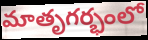
మాతృగర్భంలో